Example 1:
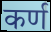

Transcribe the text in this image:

कर्ण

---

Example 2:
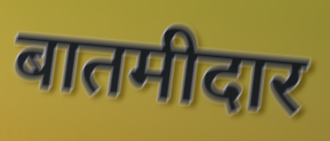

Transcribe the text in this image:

बातमीदार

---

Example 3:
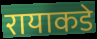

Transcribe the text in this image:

रायाकडे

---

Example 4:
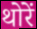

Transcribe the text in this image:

थोरें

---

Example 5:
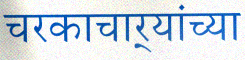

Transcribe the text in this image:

चरकाचार्यांच्या